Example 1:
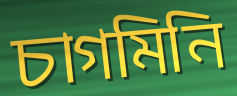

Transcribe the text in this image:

চাগমিনি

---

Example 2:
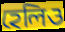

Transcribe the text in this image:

হেলিও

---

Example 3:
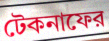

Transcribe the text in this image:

টেকনাফের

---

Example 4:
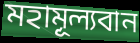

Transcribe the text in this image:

মহামূল্যবান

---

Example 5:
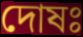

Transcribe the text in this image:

দোষঃ